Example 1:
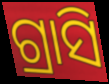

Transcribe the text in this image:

ଗ୍ରାସି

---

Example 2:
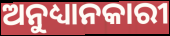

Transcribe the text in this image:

ଅନୁଧ୍ୟାନକାରୀ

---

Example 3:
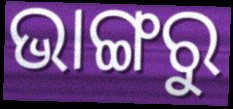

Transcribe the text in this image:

ଭାଙ୍ଗରୁ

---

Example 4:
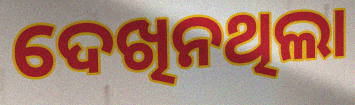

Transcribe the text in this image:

ଦେଖିନଥିଲା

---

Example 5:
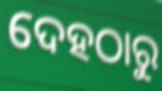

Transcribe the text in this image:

ଦେହଠାରୁ